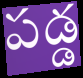
పడ్డ